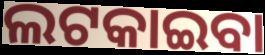
ଲଟକାଇବା